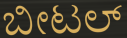
ಬೀಟಲ್